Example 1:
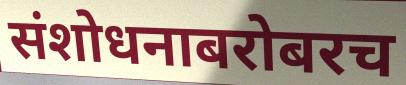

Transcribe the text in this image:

संशोधनाबरोबरच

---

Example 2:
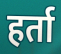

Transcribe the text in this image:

हर्ता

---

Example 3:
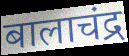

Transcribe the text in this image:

बालाचंद्र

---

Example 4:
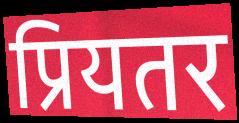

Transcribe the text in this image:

प्रियतर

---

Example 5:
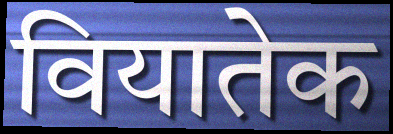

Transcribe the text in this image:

वियातेक